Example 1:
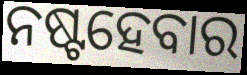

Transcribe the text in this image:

ନଷ୍ଟହେବାର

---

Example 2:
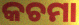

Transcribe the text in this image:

କଚମା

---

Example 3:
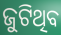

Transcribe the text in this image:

ଜୁଟିଥିବ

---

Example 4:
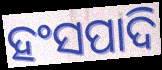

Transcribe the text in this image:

ହଂସପାଦି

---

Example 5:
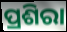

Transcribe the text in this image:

ପ୍ରଶିରା